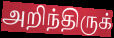
அறிந்திருக்